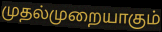
முதல்முறையாகும்